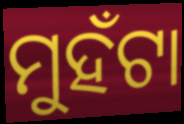
ମୁହଁଟା